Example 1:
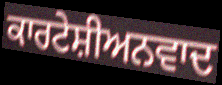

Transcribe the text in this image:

ਕਾਰਟੇਸ਼ੀਅਨਵਾਦ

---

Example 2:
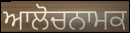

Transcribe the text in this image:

ਆਲੋਚਨਾਮਕ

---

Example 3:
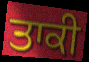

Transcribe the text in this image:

ਤਾਕੀ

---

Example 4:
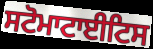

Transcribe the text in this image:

ਸਟੋਮਾਟਾਈਟਿਸ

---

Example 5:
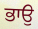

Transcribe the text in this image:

ਭਾਉ